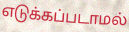
எடுக்கப்படாமல்